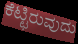
ಕೆಟ್ಟಿರುವುದು